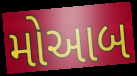
મોઆબ